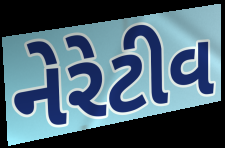
નેરેટીવ